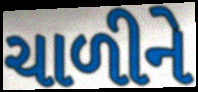
ચાળીને